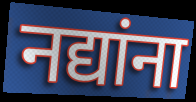
नद्यांना